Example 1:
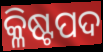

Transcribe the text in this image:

କ୍ଳିଷ୍ଟପଦ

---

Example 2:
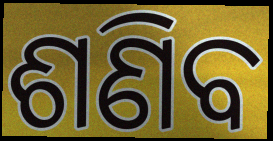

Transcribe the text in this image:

ଶଣିବ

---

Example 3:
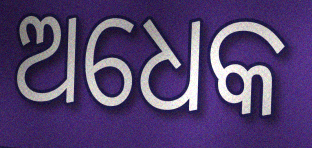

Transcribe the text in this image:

ଅଧେକ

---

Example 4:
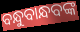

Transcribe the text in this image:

ବନ୍ଧୁବାନ୍ଧବଙ୍କ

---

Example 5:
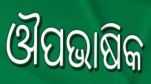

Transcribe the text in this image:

ଔପଭାଷିକ